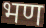
भण